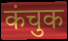
कंचुक